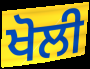
ਖੋਲੀ